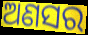
ଅଣସର